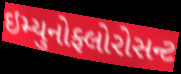
ઇમ્યુનોફ્લોરોસન્ટ